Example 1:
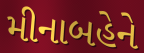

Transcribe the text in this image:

મીનાબહેને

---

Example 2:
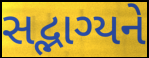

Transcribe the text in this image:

સદ્ભાગ્યને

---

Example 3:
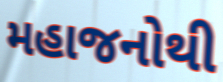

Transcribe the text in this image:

મહાજનોથી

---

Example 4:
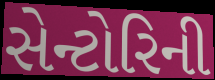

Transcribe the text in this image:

સેન્ટોરિની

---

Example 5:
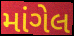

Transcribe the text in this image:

માંગેલ